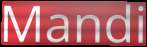
Mandi